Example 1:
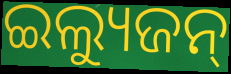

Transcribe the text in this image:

ଇଲ୍ୟୁଜନ୍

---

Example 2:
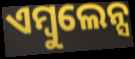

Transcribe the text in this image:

ଏମ୍ବୁଲେନ୍ସ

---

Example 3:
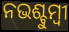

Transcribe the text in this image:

ନଭଶ୍ଚୁମ୍ବୀ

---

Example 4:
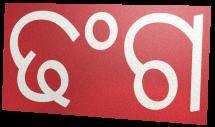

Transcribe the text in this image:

ଢଂଗ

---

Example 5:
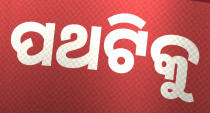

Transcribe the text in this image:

ପଥଟିକୁ